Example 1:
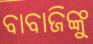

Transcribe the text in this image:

ବାବାଜିଙ୍କୁ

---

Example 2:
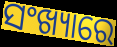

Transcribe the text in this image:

ସଂଖ୍ଯାରେ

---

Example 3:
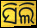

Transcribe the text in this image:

ସିଲି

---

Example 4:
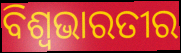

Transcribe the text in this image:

ବିଶ୍ୱଭାରତୀର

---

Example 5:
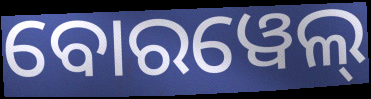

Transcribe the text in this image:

ବୋରୱେଲ୍